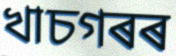
খাচগৰৰ